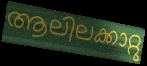
ആലിലക്കാറ്റു